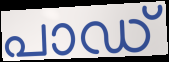
പാഡ്